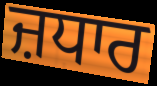
ਜ਼ਧਾਰ